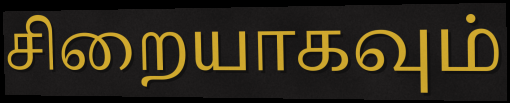
சிறையாகவும்